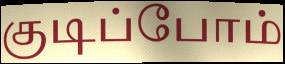
குடிப்போம்